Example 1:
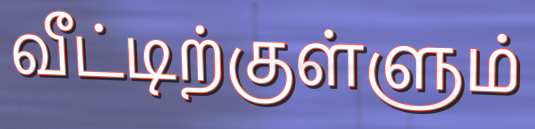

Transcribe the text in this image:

வீட்டிற்குள்ளும்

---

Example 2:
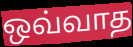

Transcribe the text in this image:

ஒவ்வாத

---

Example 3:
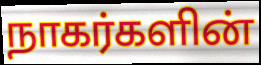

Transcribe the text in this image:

நாகர்களின்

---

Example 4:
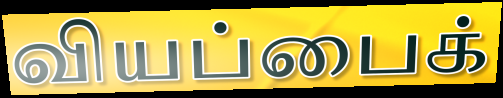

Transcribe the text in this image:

வியப்பைக்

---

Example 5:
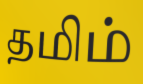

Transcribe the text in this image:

தமிம்